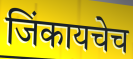
जिंकायचेच